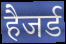
हैजर्ड